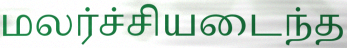
மலர்ச்சியடைந்த